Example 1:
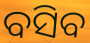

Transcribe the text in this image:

ବସିବ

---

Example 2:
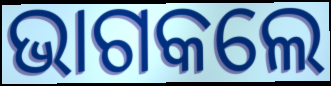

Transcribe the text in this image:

ଭାଗକଲେ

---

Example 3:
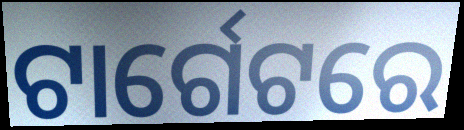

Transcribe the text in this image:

ଟାର୍ଗେଟରେ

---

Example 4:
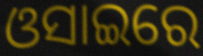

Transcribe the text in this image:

ଓସାଇରେ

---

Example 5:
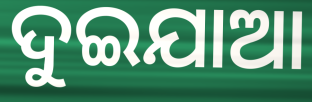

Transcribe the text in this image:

ଦୁଇଯାଆ